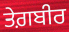
ਤੇਗ਼ਬੀਰ